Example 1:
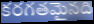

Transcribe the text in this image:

కరగతమైనది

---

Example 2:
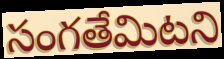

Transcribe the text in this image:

సంగతేమిటని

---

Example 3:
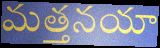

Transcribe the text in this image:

మత్తనయా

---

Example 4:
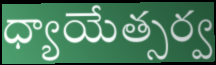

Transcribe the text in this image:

ధ్యాయేత్సర్వ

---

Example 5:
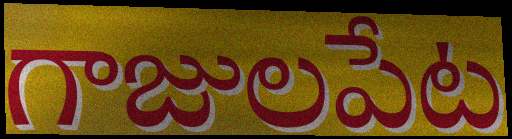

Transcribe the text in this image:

గాజులపేట